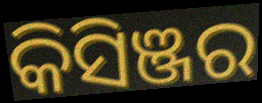
କିସିଞ୍ଜର